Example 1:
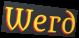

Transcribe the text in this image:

Werd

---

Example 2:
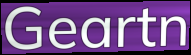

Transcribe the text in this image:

Geartn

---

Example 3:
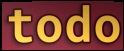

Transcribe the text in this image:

todo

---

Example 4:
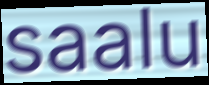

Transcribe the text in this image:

saalu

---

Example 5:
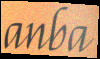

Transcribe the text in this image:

anba